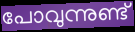
പോവുന്നുണ്ട്